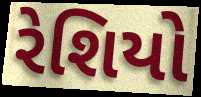
રેશિયો